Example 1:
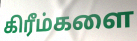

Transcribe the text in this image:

கிரீம்களை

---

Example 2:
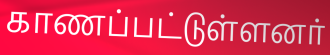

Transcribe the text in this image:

காணப்பட்டுள்ளனர்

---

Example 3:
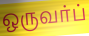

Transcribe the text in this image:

ஒருவர்ப்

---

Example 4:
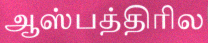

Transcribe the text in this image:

ஆஸ்பத்திரில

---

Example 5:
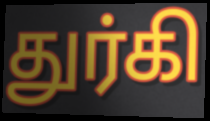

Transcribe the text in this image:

துர்கி